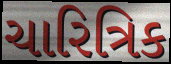
ચારિત્રિક